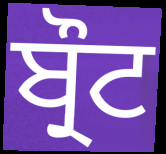
ਬ੍ਰੌਟ